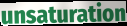
unsaturation